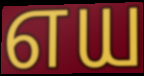
எய